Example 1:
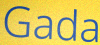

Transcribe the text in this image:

Gada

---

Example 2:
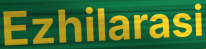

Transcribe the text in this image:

Ezhilarasi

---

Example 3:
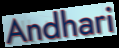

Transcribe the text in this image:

Andhari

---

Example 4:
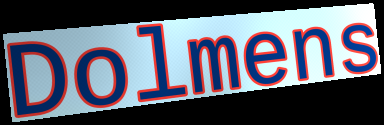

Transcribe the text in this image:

Dolmens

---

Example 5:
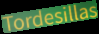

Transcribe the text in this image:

Tordesillas